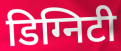
डिग्निटी